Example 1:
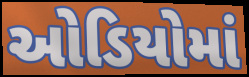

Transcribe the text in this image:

ઓડિયોમાં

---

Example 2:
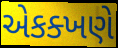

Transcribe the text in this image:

એકક્ખણે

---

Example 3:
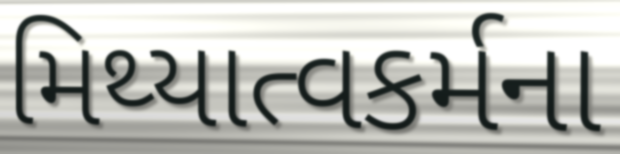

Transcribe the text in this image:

મિથ્યાત્વકર્મના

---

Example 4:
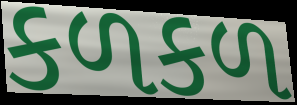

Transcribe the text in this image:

કળકળ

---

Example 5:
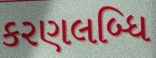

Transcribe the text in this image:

કરણલબ્ધિ